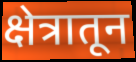
क्षेत्रातून